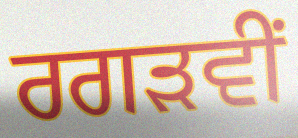
ਰਗੜਵੀਂ